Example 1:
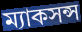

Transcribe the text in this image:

ম্যাকসন্স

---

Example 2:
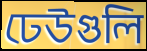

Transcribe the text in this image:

ঢেউগুলি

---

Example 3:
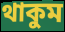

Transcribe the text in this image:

থাকুম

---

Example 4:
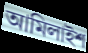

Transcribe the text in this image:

আমিলাইশ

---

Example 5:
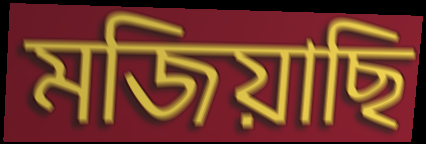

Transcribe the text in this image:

মজিয়াছি